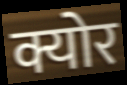
क्योर